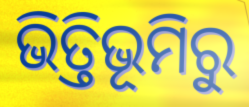
ଭିତ୍ତିଭୂମିରୁ